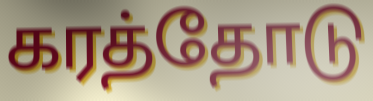
கரத்தோடு